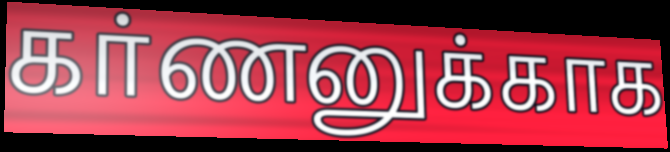
கர்ணனுக்காக